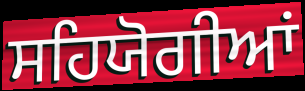
ਸਹਿਯੋਗੀਆਂ